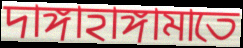
দাঙ্গাহাঙ্গামাতে